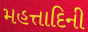
મહત્તાદિની